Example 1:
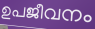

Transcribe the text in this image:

ഉപജീവനം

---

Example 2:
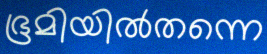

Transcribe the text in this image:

ഭൂമിയിൽതന്നെ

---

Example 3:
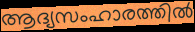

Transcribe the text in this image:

ആദ്യസംഹാരത്തിൽ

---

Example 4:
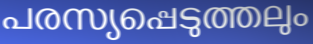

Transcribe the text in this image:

പരസ്യപ്പെടുത്തലും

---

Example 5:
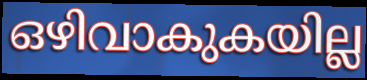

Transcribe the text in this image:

ഒഴിവാകുകയില്ല